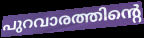
പുറവാരത്തിന്റെ